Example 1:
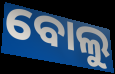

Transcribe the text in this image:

ବୋଲୁ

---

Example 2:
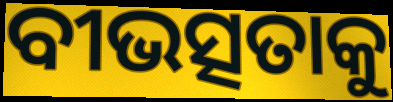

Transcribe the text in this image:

ବୀଭତ୍ସତାକୁ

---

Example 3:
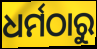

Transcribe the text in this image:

ଧର୍ମଠାରୁ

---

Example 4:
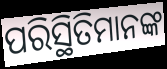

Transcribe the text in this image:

ପରିସ୍ଥିତିମାନଙ୍କ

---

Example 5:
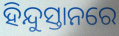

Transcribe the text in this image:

ହିନ୍ଦୁସ୍ତାନରେ